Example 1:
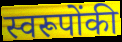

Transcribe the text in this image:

स्वरूपोंकी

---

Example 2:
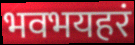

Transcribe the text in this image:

भवभयहरं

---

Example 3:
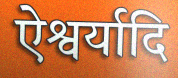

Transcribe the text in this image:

ऐश्वर्यादि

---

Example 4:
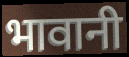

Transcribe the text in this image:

भावानी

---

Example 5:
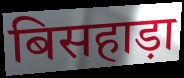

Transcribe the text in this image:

बिसहाड़ा